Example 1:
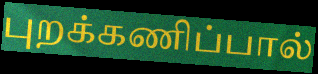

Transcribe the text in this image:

புறக்கணிப்பால்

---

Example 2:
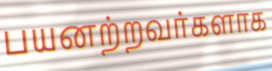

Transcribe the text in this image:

பயனற்றவர்களாக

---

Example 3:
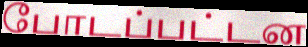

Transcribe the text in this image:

போடப்பட்டன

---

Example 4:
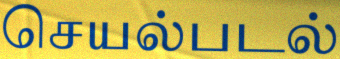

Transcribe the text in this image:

செயல்படல்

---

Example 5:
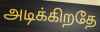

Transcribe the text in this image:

அடிக்கிறதே